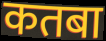
कतबा